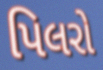
પિલરો